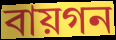
বায়গন